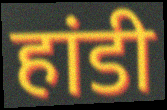
हांडी